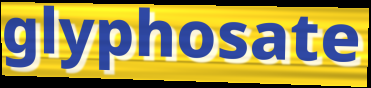
glyphosate